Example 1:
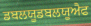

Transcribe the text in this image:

ਡਬਲਯੂਡਬਲਯੂਐਫ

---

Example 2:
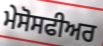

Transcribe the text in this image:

ਮੇਸੋਸਫੀਅਰ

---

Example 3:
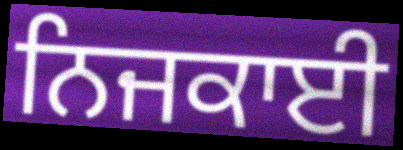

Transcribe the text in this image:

ਨਿਜਕਾਈ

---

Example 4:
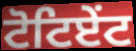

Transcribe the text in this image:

ਟੋਟਿਏਂਟ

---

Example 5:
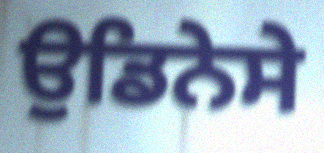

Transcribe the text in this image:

ਉਡਿਨੇਸੇ